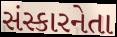
સંસ્કારનેતા